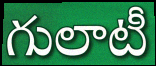
గులాటీ